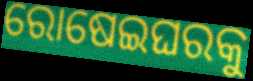
ରୋଷେଇଘରକୁ